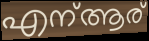
എന്ആര്